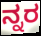
ನ್ನರ